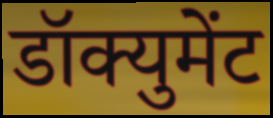
डॉक्युमेंट